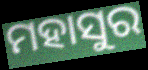
ମହାସୁର